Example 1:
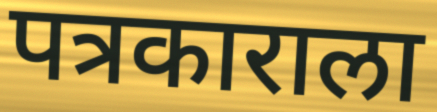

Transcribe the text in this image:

पत्रकाराला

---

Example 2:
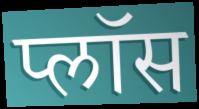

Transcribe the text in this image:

प्लॉस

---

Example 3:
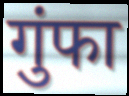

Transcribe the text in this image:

गुंफा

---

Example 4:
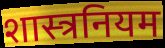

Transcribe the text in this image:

शास्त्रनियम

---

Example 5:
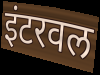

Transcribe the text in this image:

इंटरवल